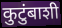
कुटुंबाशी